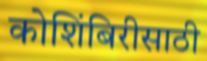
कोशिंबिरीसाठी